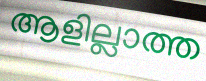
ആളില്ലാത്ത